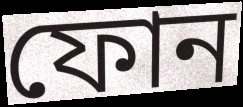
ফোন